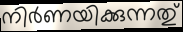
നിർണയിക്കുന്നതു്